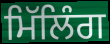
ਮਿੱਲਿੰਗ